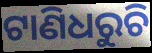
ଟାଣିଧରୁଚି